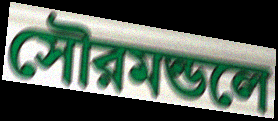
সৌরমন্ডলে